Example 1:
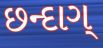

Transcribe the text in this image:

છન્દાગ્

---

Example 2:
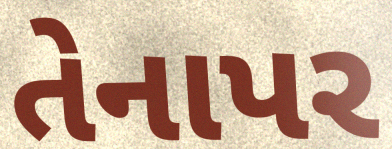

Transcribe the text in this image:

તેનાપર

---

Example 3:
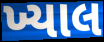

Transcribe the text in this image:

ખ્યાલ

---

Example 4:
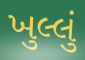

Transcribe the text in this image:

ખુલ્લું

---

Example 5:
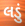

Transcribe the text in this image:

લડું